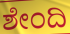
ಶೇಂದಿ